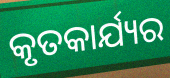
କୃତକାର୍ଯ୍ୟର